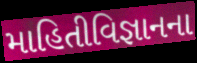
માહિતીવિજ્ઞાનના